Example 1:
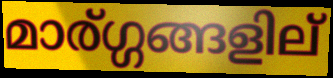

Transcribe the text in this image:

മാര്ഗ്ഗങ്ങളില്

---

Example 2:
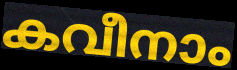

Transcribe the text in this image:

കവീനാം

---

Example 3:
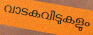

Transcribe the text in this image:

വാടകവീടുകളും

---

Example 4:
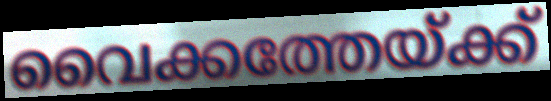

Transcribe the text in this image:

വൈക്കത്തേയ്ക്ക്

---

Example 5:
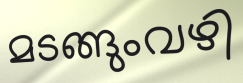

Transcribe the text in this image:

മടങ്ങുംവഴി